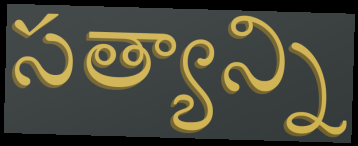
సత్యాన్ని